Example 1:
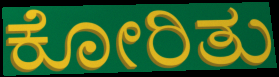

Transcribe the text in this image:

ಕೋರಿತು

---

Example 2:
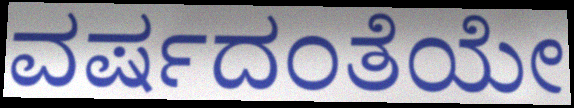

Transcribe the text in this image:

ವರ್ಷದಂತೆಯೇ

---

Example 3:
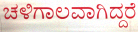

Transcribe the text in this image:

ಚಳಿಗಾಲವಾಗಿದ್ದರೆ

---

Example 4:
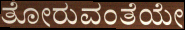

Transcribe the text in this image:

ತೋರುವಂತೆಯೇ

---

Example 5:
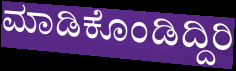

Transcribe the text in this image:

ಮಾಡಿಕೊಂಡಿದ್ದಿರಿ